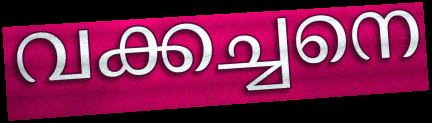
വക്കച്ചനെ